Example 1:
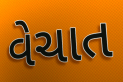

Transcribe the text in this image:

વેચાત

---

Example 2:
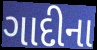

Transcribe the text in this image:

ગાદીના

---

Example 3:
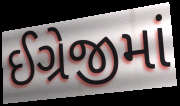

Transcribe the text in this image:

ઈગ્રેજીમાં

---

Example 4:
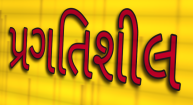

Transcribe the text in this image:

પ્રગતિશીલ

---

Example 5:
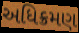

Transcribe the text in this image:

અધિક્રમણ